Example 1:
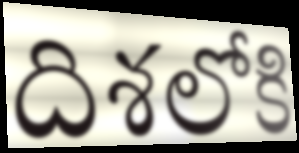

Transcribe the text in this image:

దిశలోకి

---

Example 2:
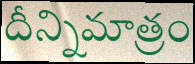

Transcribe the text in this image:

దీన్నిమాత్రం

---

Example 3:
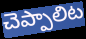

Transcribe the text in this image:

చెప్పాలిట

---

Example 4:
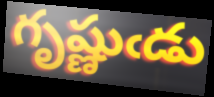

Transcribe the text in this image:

గృష్ణుఁడు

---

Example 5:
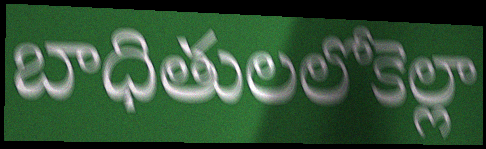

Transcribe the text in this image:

బాధితులలోకెల్లా